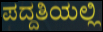
ಪದ್ದತಿಯಲ್ಲಿ